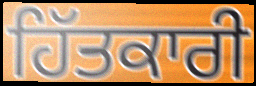
ਹਿੱਤਕਾਰੀ